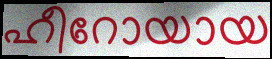
ഹീറോയായ